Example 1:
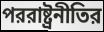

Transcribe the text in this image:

পররাষ্ট্রনীতির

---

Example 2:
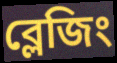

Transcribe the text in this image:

ব্লেজিং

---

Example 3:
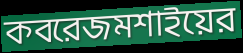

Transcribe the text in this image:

কবরেজমশাইয়ের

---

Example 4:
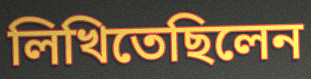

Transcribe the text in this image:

লিখিতেছিলেন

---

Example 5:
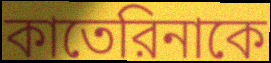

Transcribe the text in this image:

কাতেরিনাকে